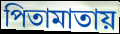
পিতামাতায়